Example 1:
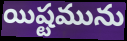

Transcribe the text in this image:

యిష్టమును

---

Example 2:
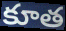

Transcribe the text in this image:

కూత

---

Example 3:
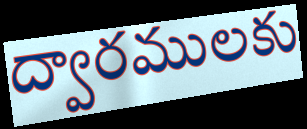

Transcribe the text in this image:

ద్వారములకు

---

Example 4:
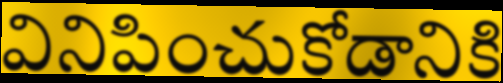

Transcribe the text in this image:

వినిపించుకోడానికి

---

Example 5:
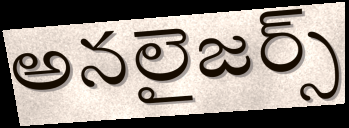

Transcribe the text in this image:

అనలైజర్స్